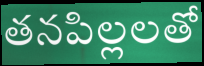
తనపిల్లలతో